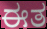
ಈತ